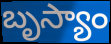
బృస్యాం